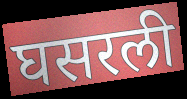
घसरली